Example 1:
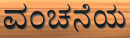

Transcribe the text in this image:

ವಂಚನೆಯ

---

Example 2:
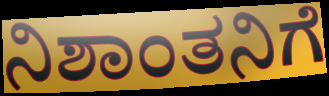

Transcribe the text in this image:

ನಿಶಾಂತನಿಗೆ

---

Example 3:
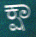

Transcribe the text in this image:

ಕ್ಷಾ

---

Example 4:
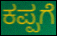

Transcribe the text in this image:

ಕಪ್ಪಗೆ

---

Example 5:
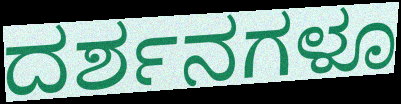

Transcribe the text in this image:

ದರ್ಶನಗಳೂ